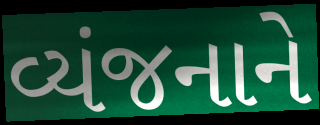
વ્યંજનાને